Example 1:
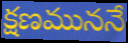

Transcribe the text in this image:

క్షణముననే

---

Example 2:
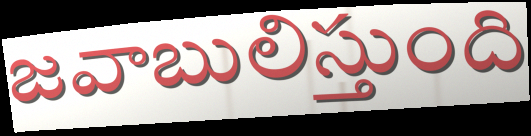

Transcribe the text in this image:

జవాబులిస్తుంది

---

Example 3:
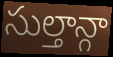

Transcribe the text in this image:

సుల్తాన్గా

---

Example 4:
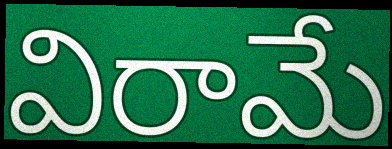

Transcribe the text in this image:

విరామే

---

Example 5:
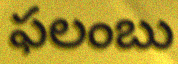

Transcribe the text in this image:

ఫలంబు